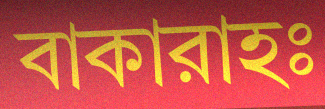
বাকারাহঃ